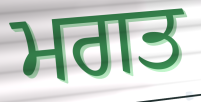
ਮਗਤ